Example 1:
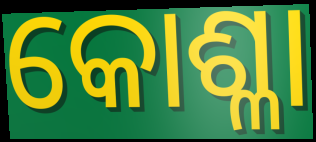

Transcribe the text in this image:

କୋଶ୍ଳା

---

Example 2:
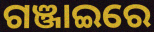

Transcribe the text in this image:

ଗଞ୍ଜାଇରେ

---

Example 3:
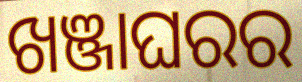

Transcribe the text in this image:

ଖଞ୍ଜାଘରର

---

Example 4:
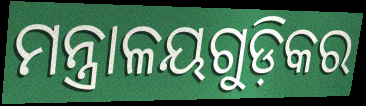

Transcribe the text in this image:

ମନ୍ତ୍ରାଳୟଗୁଡ଼ିକର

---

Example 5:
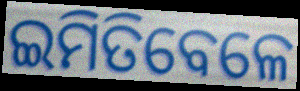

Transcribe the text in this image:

ଇମିତିବେଳେ